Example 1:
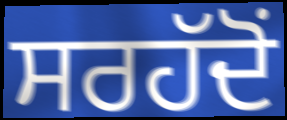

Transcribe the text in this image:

ਸਰਹੱਦੋਂ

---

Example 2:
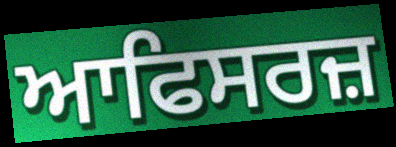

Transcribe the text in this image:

ਆਫਿਸਰਜ਼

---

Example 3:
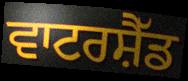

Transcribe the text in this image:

ਵਾਟਰਸ਼ੈੱਡ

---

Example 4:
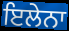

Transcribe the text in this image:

ਇਲੇਨਾ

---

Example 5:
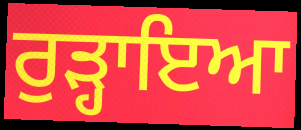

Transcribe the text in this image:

ਰੁੜ੍ਹਾਇਆ